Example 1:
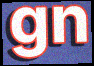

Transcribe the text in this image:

gn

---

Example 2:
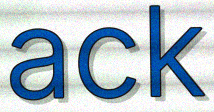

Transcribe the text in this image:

ack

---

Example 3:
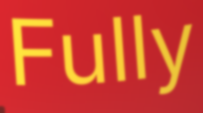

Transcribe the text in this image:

Fully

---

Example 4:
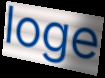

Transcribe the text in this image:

loge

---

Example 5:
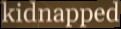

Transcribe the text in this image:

kidnapped